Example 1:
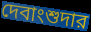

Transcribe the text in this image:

দেবাংশুদার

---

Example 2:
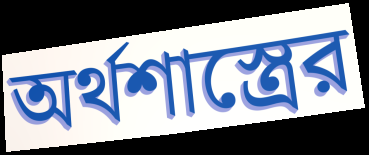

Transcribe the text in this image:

অর্থশাস্ত্রের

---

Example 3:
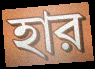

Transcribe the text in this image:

হার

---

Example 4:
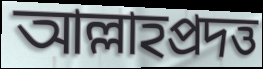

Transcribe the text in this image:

আল্লাহপ্রদত্ত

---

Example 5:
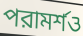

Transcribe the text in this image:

পরামর্শও